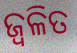
ଜ୍ୱଳିତ